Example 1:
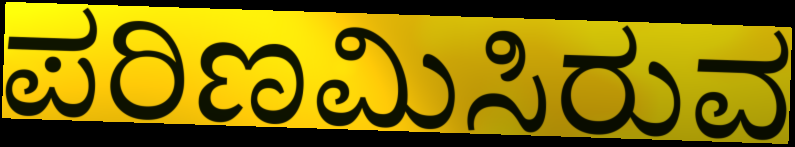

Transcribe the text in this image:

ಪರಿಣಮಿಸಿರುವ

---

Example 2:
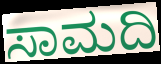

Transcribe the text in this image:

ಸಾಮದಿ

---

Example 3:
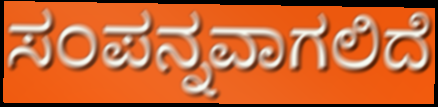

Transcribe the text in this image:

ಸಂಪನ್ನವಾಗಲಿದೆ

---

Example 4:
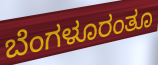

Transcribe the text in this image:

ಬೆಂಗಳೂರಂತೂ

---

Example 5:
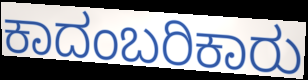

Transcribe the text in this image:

ಕಾದಂಬರಿಕಾರು